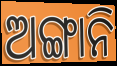
ଅଙ୍ଗାନି